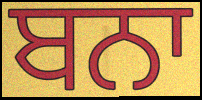
ਬਨਾ